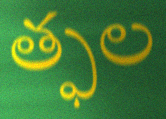
త్ఫల